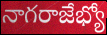
నాగరాజేభ్యో